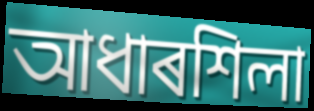
আধাৰশিলা